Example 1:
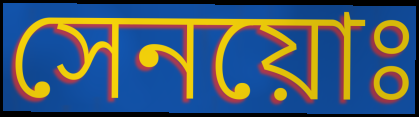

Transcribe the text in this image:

সেনয়োঃ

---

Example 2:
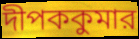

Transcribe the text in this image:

দীপককুমার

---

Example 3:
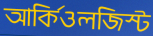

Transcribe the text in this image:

আর্কিওলজিস্ট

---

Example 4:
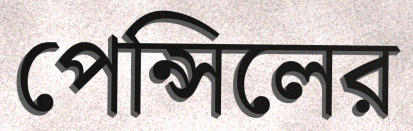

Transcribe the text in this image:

পেন্সিলের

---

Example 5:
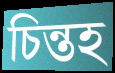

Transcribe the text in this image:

চিন্তহ